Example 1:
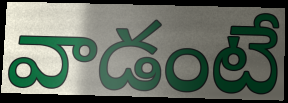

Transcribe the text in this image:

వాడంటే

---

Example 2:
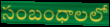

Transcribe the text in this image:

సంబంధాలలో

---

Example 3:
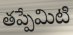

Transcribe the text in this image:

తప్పేమిటి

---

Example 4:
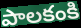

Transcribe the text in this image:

పాలకంకి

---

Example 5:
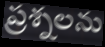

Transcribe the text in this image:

ప్రశ్నలను